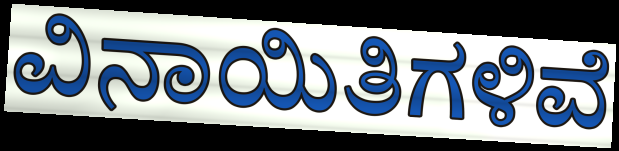
ವಿನಾಯಿತಿಗಳಿವೆ